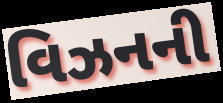
વિઝનની